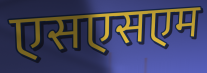
एसएसएम